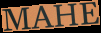
MAHE